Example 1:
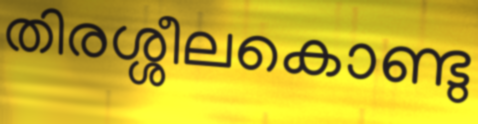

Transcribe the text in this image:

തിരശ്ശീലകൊണ്ടു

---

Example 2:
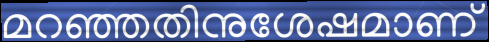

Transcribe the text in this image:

മറഞ്ഞതിനുശേഷമാണ്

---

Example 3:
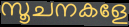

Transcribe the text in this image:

സൂചനകളേ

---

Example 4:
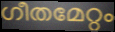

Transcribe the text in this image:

ഗീതമേറ്റം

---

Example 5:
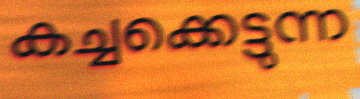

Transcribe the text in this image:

കച്ചക്കെട്ടുന്ന